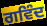
ਗਵਿੰਦ